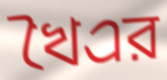
খৈএর